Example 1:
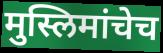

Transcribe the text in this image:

मुस्लिमांचेच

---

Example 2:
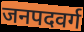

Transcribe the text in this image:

जनपदवर्ग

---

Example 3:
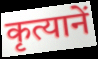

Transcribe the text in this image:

कृत्यानें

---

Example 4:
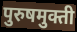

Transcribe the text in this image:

पुरुषमुक्ती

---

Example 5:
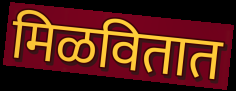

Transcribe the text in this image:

मिळवितात